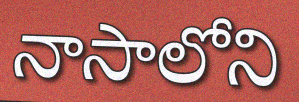
నాసాలోని